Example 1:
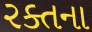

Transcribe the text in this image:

રક્તના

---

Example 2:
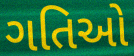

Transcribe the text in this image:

ગતિઓ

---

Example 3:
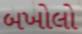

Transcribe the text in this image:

બખોલો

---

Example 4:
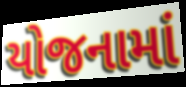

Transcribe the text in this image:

યોજનામાં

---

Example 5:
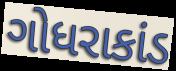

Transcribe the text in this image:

ગોધરાકાંડ